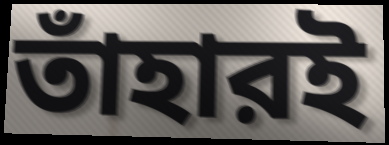
তাঁহারই